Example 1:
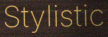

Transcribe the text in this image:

Stylistic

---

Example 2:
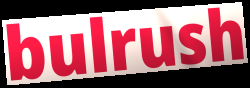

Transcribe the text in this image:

bulrush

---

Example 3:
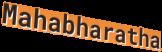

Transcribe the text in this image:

Mahabharatha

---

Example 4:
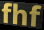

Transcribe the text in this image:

fhf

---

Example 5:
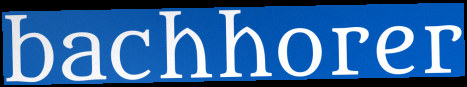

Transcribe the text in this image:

bachhorer